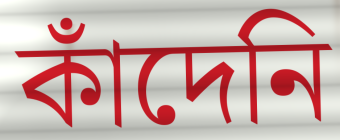
কাঁদেনি